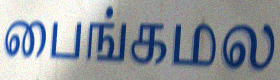
பைங்கமல